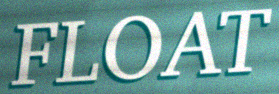
FLOAT